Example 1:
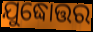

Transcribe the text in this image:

ଯୁଦ୍ଧୋତ୍ତର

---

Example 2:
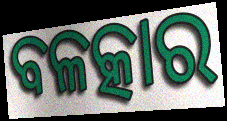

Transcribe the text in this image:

ବଳତ୍କାର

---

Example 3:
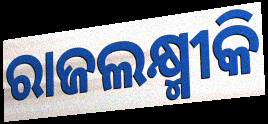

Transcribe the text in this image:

ରାଜଲକ୍ଷ୍ମୀକି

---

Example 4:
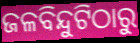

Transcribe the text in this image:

ଜଳବିନ୍ଦୁଟିଠାରୁ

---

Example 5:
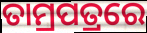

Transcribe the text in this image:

ତାମ୍ରପତ୍ରରେ